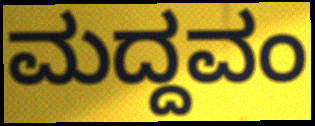
ಮದ್ದವಂ